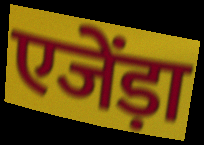
एजेंड़ा